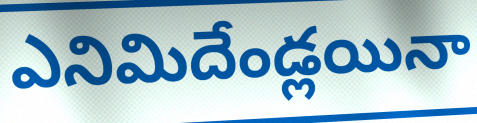
ఎనిమిదేండ్లయినా